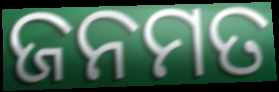
ଜନମତ